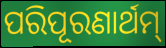
ପରିପୂରଣାର୍ଥମ୍